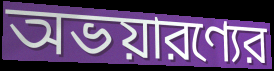
অভয়ারণ্যের